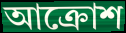
আক্রোশ